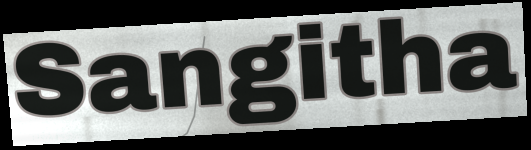
Sangitha